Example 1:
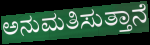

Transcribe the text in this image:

ಅನುಮತಿಸುತ್ತಾನೆ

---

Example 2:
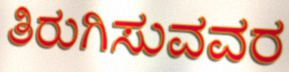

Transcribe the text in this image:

ತಿರುಗಿಸುವವರ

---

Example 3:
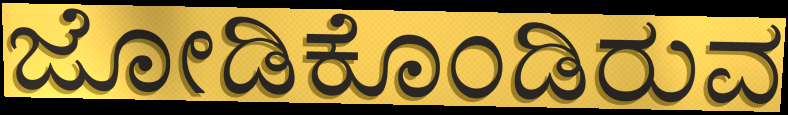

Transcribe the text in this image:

ಜೋಡಿಕೊಂಡಿರುವ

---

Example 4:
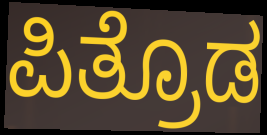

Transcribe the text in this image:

ಪಿತ್ರೊಡ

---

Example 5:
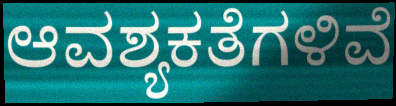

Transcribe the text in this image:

ಆವಶ್ಯಕತೆಗಳಿವೆ